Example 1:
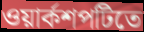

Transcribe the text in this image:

ওয়ার্কশপটিতে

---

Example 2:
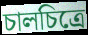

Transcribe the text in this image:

চালচিত্রে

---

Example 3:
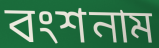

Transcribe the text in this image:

বংশনাম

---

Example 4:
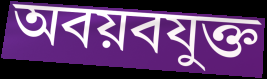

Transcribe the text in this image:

অবয়বযুক্ত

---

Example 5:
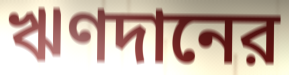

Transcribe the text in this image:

ঋণদানের